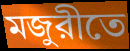
মজুরীতে